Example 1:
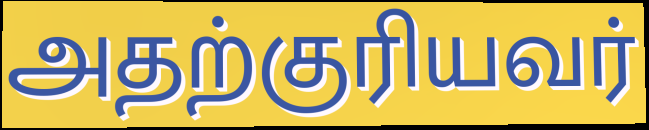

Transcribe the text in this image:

அதற்குரியவர்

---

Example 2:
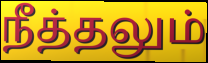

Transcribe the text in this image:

நீத்தலும்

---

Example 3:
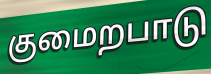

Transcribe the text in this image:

குமைறபாடு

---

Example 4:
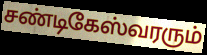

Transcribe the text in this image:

சண்டிகேஸ்வரரும்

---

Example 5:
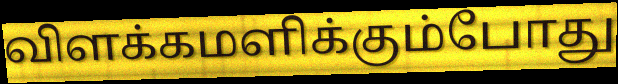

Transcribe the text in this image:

விளக்கமளிக்கும்போது